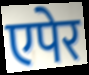
एपेर